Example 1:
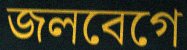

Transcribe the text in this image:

জলবেগে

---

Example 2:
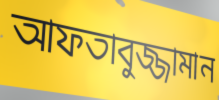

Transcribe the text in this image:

আফতাবুজ্জামান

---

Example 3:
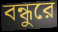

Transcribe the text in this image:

বন্ধুরে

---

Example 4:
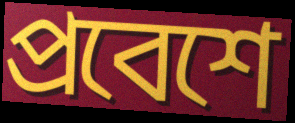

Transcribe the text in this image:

প্রবেশে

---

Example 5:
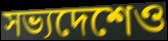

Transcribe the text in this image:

সভ্যদেশেও